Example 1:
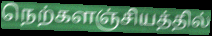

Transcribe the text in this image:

நெற்களஞ்சியத்தில்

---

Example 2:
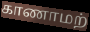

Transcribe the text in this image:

காணாமற்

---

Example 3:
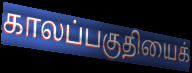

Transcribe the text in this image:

காலப்பகுதியைக்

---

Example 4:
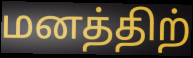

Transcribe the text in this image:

மனத்திற்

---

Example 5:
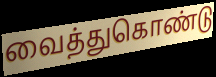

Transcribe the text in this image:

வைத்துகொண்டு